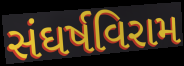
સંઘર્ષવિરામ